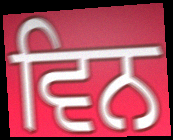
ਵਿਨ